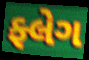
ફ્લેગ